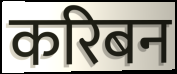
करिबन